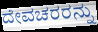
ದೇವಚರರನ್ನು